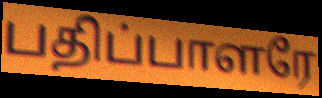
பதிப்பாளரே